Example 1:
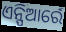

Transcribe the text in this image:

ଏନ୍ପିଆର୍ରେ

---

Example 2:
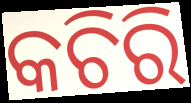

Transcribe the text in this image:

କଚିରି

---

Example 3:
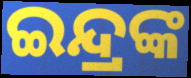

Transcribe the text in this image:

ଇନ୍ଦ୍ରଙ୍କ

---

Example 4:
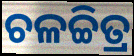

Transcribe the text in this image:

ଚଳଚ୍ଚିତ୍ର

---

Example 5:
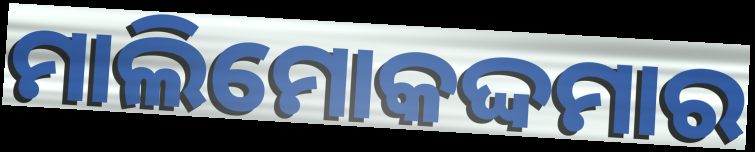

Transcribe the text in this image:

ମାଲିମୋକଦ୍ଦମାର